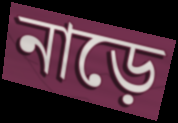
নাড়ে